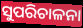
ସୁପରିଚାଳନା